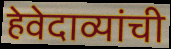
हेवेदाव्यांची